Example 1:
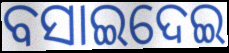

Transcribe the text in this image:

ବସାଇଦେଇ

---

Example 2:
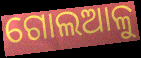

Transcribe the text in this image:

ଗୋଲଆଳୁ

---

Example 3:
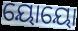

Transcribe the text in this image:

ୟୋୟୋ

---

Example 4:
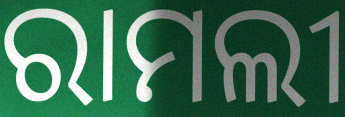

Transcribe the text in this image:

ରାମଲୀ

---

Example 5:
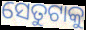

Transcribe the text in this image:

ସେତୁଟାକୁ